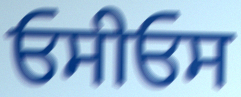
ਓਸੀਓਸ